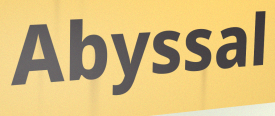
Abyssal